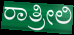
ರಾತ್ರೀಲಿ